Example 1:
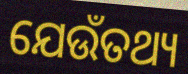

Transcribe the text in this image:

ଯେଉଁତଥ୍ୟ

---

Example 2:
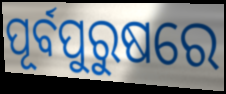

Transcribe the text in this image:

ପୂର୍ବପୁରୁଷରେ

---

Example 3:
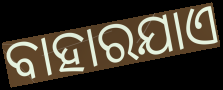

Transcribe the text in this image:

ବାହାରଯାଏ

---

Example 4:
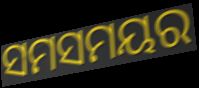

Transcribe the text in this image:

ସମସମୟର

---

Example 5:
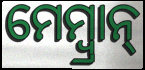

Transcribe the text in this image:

ମେମ୍ବ୍ରାନ୍